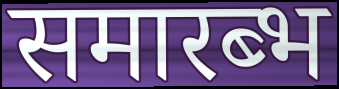
समारब्भ